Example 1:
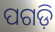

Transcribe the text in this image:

ପଗଡ଼ି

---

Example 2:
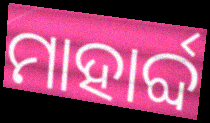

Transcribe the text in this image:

ମାହାର୍ବ୍ଦ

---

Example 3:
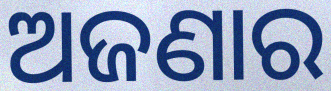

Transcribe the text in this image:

ଅଜଣାର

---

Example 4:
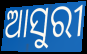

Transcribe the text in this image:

ଆସୁରୀ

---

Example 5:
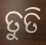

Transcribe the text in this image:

ତୁତି